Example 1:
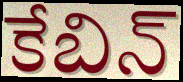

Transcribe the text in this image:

కేబిన్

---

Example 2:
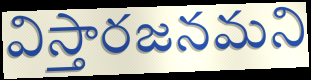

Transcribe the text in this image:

విస్తారజనమని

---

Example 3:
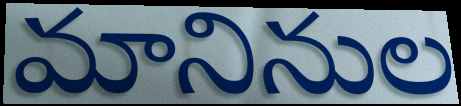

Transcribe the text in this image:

మానినుల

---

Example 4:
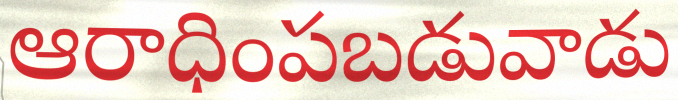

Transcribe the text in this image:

ఆరాధింపబడువాడు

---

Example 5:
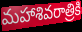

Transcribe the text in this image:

మహాశివరాత్రికి